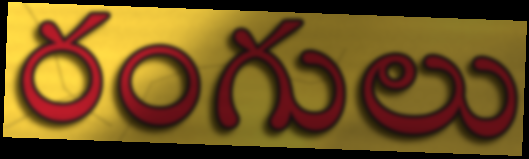
రంగులు